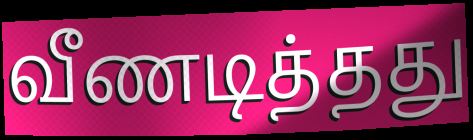
வீணடித்தது